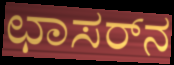
ಛಾಸರ್‌ನ